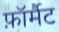
फ़ॉर्मैट